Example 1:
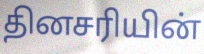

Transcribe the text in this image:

தினசரியின்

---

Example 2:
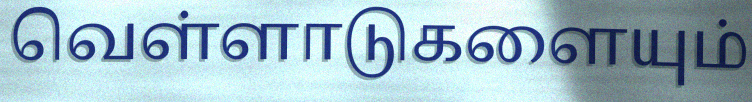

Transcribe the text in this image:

வெள்ளாடுகளையும்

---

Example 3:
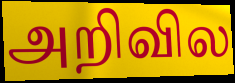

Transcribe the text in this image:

அறிவில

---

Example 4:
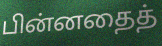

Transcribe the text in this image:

பின்னதைத்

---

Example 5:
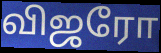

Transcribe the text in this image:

விஜரோ